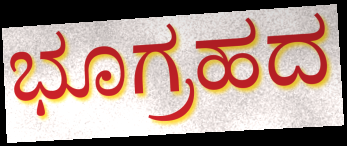
ಭೂಗ್ರಹದ